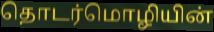
தொடர்மொழியின்